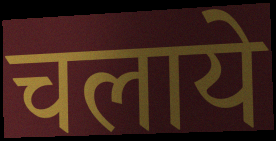
चलाये